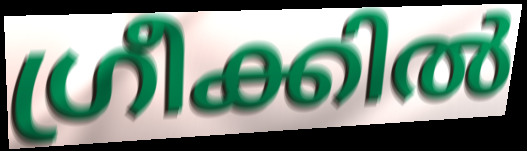
ഗ്രീക്കിൽ